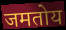
जमतोय